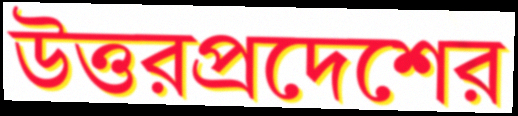
উত্তরপ্রদেশের